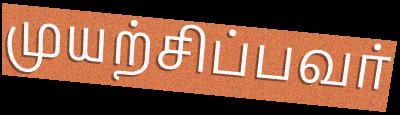
முயற்சிப்பவர்